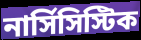
নার্সিসিস্টিক